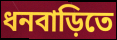
ধনবাড়িতে